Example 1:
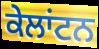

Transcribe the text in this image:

ਕੇਲਾਂਟਨ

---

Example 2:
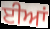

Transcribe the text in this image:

ਈਆਂ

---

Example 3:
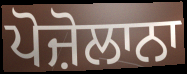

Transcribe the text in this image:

ਪੋਜ਼ੋਲਾਨਾ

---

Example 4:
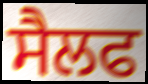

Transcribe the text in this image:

ਸੈਲਫ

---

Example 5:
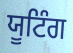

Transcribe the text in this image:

ਯੂਟਿੰਗ